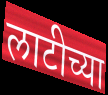
लाटीच्या